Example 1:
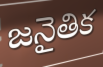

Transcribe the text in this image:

జనైతిక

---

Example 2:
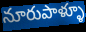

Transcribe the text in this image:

నూరుపాళ్ళూ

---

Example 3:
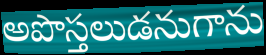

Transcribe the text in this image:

అపొస్తలుడనుగాను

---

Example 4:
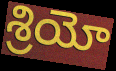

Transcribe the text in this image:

శ్రియో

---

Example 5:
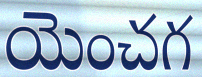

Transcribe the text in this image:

యెంచగ